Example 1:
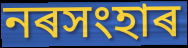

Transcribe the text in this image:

নৰসংহাৰ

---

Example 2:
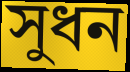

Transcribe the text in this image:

সুধন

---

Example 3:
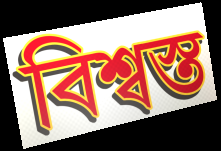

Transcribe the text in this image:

বিশ্বস্ত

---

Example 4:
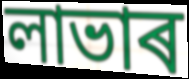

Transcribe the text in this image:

লাভাৰ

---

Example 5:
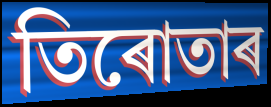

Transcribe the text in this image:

তিৰোতাৰ